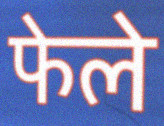
फेले